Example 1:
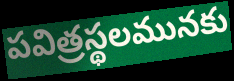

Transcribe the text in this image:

పవిత్రస్థలమునకు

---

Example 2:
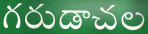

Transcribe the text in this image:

గరుడాచల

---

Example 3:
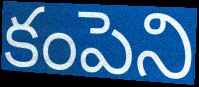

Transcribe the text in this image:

కంపెని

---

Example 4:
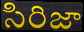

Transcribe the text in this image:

సిరిజా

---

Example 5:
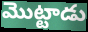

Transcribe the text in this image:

మొట్టాడు